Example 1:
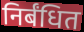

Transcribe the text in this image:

निर्बंधित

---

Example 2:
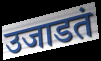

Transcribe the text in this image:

उजाडतं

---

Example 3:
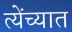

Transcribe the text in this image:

त्येंच्यात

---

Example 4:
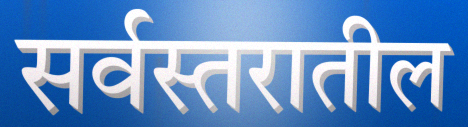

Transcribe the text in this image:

सर्वस्तरातील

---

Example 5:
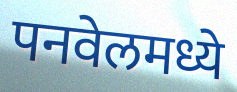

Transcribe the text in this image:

पनवेलमध्ये